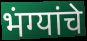
भंग्यांचे